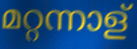
മറ്റന്നാള്